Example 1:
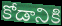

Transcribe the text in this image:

కోడానికి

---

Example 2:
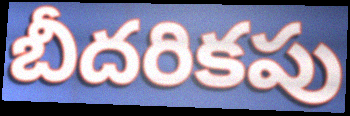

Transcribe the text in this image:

బీదరికపు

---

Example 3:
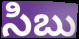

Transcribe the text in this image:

సిబు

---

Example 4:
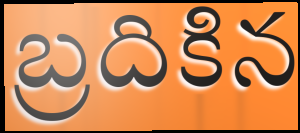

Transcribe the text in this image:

బ్రదికిన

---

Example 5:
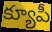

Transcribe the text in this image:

క్యూపీ